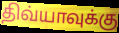
திவ்யாவுக்கு